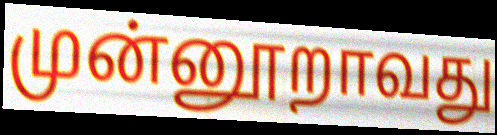
முன்னூறாவது